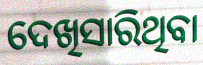
ଦେଖିସାରିଥିବା